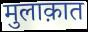
मुलाक़ात